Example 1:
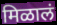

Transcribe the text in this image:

मिळालं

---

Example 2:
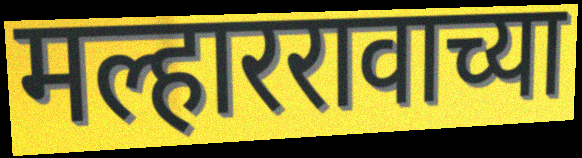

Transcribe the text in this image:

मल्हाररावाच्या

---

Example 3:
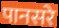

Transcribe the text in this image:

पानसरे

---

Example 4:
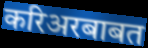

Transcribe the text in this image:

करिअरबाबत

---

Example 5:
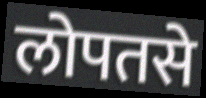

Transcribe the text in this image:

लोपतसे